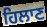
ਹਿਲਾਣ